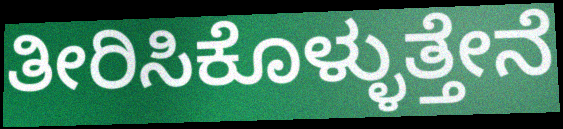
ತೀರಿಸಿಕೊಳ್ಳುತ್ತೇನೆ